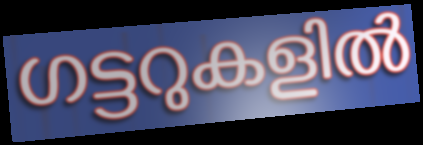
ഗട്ടറുകളിൽ